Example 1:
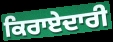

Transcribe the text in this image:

ਕਿਰਾਏਦਾਰੀ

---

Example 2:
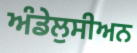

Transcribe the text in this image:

ਅੰਡੇਲੁਸੀਅਨ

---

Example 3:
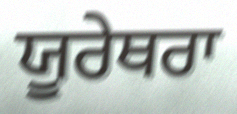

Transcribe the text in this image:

ਯੂਰੇਥਰਾ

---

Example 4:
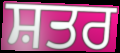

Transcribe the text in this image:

ਸ਼ਤਰ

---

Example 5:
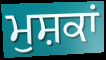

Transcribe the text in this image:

ਮੁਸ਼ਕਾਂ